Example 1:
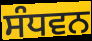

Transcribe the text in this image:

ਸੰਧਵਨ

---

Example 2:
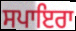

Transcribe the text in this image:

ਸਪਾਇਰਾ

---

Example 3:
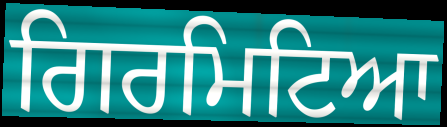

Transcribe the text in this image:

ਗਿਰਮਿਟਿਆ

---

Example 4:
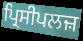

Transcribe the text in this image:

ਪ੍ਰਿਸੀਪਲਜ਼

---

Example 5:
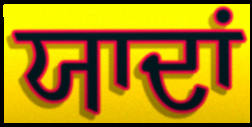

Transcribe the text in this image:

ਯਾਦਾਂ